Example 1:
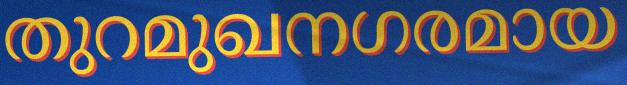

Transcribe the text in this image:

തുറമുഖനഗരമായ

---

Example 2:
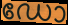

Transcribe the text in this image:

ഡോ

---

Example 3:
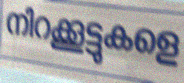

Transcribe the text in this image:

നിറക്കൂട്ടുകളെ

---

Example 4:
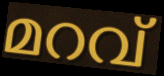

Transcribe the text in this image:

മറവ്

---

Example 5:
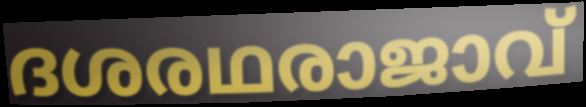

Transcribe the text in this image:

ദശരഥരാജാവ്